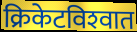
क्रिकेटविश्‍वात